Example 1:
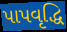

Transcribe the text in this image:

પાપવૃદ્ધિ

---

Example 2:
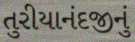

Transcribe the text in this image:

તુરીયાનંદજીનું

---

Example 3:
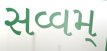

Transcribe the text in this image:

સવ્વમ્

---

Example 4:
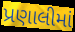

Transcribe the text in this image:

પ્રણાલીમાં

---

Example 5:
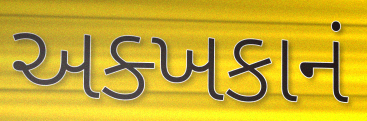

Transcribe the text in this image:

અક્ખકાનં